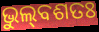
ଭୁଲ୍‌ବଶତଃ